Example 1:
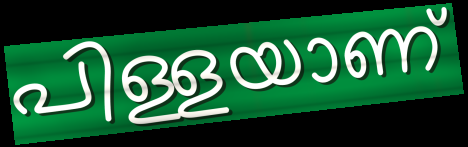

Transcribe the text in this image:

പിള്ളയാണ്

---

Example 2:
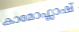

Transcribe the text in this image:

കാമോഫ്ലാഷ്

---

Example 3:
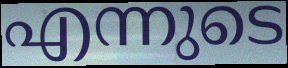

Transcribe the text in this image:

എന്നുടെ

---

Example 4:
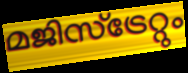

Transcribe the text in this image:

മജിസ്ട്രേറ്റും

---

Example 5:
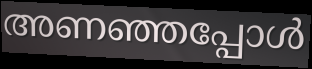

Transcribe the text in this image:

അണഞ്ഞപ്പോൾ